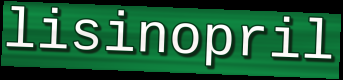
lisinopril